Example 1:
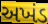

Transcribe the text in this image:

અખંડ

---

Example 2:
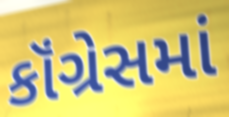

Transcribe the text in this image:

કૉંગ્રેસમાં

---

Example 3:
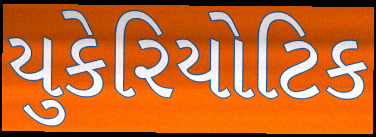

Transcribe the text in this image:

યુકેરિયોટિક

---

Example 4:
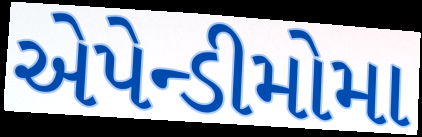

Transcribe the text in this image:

એપેન્ડીમોમા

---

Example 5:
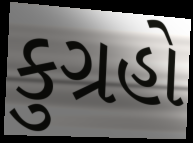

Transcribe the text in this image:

કુગ્રહો